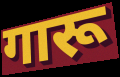
गारू